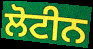
ਲੋਟੀਨ